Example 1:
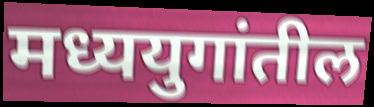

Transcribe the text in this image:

मध्ययुगांतील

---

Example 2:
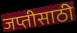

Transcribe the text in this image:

जप्तीसाठी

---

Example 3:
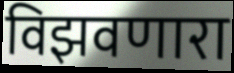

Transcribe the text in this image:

विझवणारा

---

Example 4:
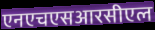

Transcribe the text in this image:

एनएचएसआरसीएल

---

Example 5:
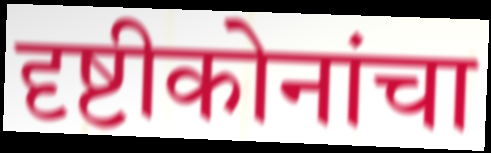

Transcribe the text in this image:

दृष्टीकोनांचा